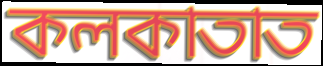
কলকাতাত